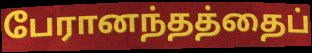
பேரானந்தத்தைப்